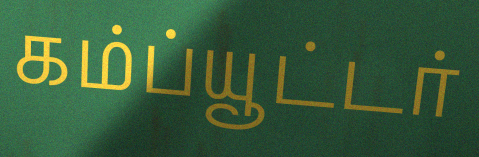
கம்ப்யூட்டர்